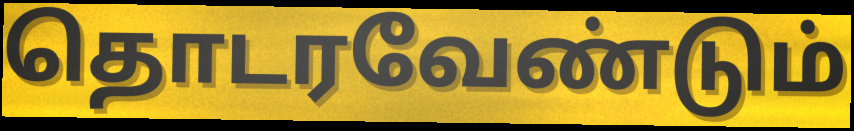
தொடரவேண்டும்